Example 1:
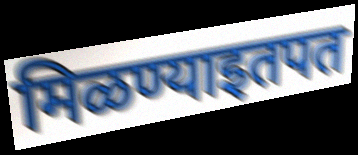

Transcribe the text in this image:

मिळण्याइतपत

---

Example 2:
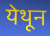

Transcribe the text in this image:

येथून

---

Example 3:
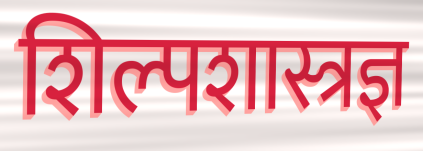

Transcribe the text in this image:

शिल्पशास्त्रज्ञ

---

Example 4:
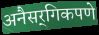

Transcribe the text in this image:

अनैसर्गिकपणे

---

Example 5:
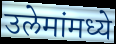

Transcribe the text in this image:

उलेमांमध्ये